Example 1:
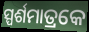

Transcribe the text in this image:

ସ୍ପର୍ଶମାତ୍ରକେ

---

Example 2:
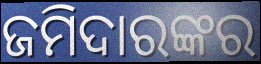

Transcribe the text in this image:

ଜମିଦାରଙ୍କର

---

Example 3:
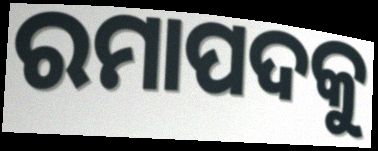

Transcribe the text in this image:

ରମାପଦକୁ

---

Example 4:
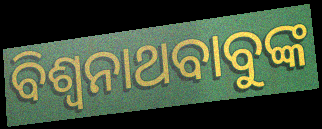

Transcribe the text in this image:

ବିଶ୍ୱନାଥବାବୁଙ୍କ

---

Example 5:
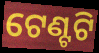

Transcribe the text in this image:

ଟେଣ୍ଟଟି